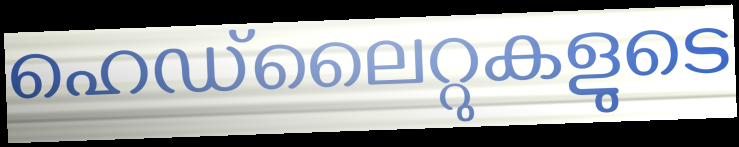
ഹെഡ്‌ലൈറ്റുകളുടെ